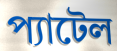
প্যাটেল